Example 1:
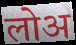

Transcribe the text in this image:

लोअ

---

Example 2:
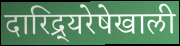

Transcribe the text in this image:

दारिद्र्यरेषेखाली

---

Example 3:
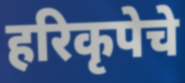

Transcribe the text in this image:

हरिकृपेचे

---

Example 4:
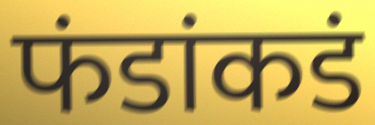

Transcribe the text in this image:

फंडांकडं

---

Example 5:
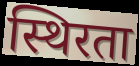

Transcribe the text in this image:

स्थिरता